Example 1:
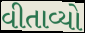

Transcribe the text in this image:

વીતાવ્યો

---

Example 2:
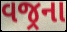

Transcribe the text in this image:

વજ્રના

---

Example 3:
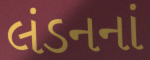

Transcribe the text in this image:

લંડનનાં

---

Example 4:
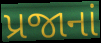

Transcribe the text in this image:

પ્રજાનાં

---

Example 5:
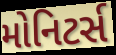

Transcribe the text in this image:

મોનિટર્સ